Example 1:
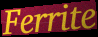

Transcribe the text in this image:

Ferrite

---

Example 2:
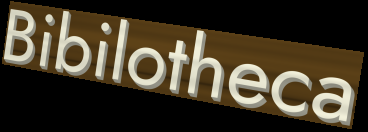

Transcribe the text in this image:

Bibilotheca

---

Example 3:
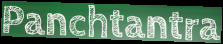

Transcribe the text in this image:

Panchtantra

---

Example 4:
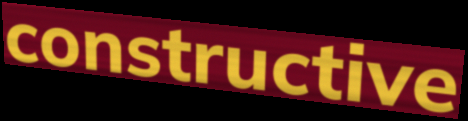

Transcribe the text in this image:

constructive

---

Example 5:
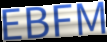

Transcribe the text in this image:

EBFM